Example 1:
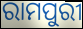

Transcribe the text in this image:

ରାମପୁରୀ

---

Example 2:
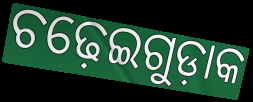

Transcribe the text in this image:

ଚଢ଼େଇଗୁଡ଼ାକ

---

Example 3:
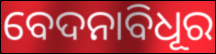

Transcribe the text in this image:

ବେଦନାବିଧୂର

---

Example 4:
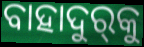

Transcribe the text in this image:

ବାହାଦୁର୍‌କୁ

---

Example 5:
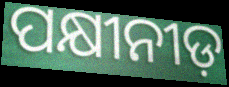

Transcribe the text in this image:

ପକ୍ଷୀନୀଡ଼